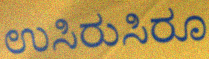
ಉಸಿರುಸಿರೂ